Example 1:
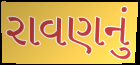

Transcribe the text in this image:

રાવણનું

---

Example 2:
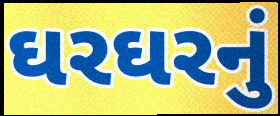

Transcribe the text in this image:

ઘરઘરનું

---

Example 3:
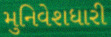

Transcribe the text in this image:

મુનિવેશધારી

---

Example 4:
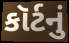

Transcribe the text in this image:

કૉર્ટનું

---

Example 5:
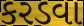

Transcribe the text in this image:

કરડવા